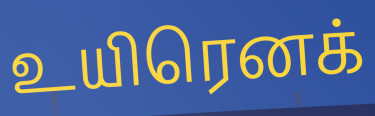
உயிரெனக்